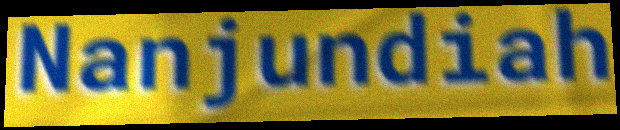
Nanjundiah